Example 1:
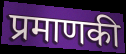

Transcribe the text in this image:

प्रमाणकी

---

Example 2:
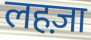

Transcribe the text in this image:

लहज़ा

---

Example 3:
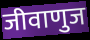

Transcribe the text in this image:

जीवाणुज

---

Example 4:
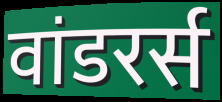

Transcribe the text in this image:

वांडरर्स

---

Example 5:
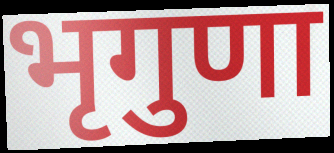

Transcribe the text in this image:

भृगुणा